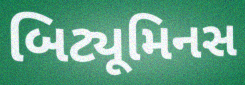
બિટ્યૂમિનસ